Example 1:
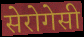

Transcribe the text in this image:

सेरोगेसी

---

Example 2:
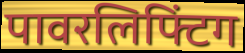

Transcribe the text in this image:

पावरलिफ्टिंग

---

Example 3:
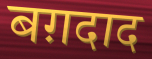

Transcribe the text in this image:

बग़दाद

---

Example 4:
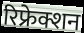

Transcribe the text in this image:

रिफ्रेक्शन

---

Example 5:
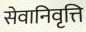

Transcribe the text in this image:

सेवानिवृत्ति